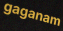
gaganam